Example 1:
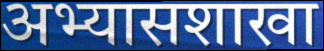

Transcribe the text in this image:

अभ्यासशाखा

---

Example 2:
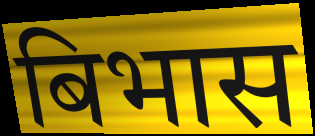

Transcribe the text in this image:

बिभास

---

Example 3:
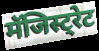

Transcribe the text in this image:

मॅजिस्ट्रेट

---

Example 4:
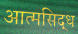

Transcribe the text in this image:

आत्मसिद्ध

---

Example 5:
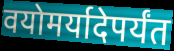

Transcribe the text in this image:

वयोमर्यादेपर्यंत